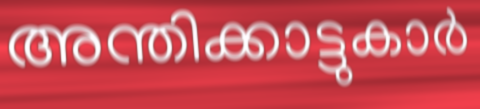
അന്തിക്കാട്ടുകാർ